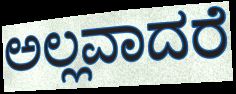
ಅಲ್ಲವಾದರೆ